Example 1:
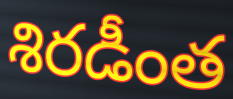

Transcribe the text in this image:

శిరడీంత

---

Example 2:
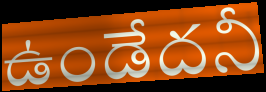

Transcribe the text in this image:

ఉండేదనీ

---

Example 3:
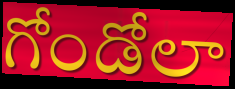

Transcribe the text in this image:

గోండోలా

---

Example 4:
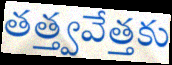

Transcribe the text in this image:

తత్త్వవేత్తకు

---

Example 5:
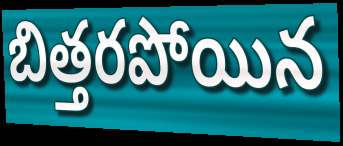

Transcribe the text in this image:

బిత్తరపోయిన